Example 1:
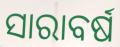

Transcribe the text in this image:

ସାରାବର୍ଷ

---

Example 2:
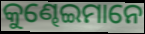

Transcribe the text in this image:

କୁଣ୍ଢେଇମାନେ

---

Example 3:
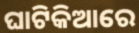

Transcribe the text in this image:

ଘାଟିକିଆରେ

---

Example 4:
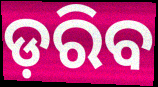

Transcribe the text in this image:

ଡ଼ରିବ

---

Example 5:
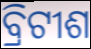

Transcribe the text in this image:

ବ୍ରିଟୀଶ